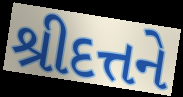
શ્રીદત્તને